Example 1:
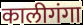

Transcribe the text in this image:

कालीगंगा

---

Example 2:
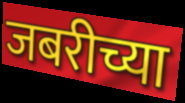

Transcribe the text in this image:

जबरीच्या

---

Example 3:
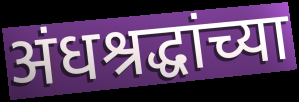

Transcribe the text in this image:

अंधश्रद्धांच्या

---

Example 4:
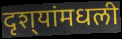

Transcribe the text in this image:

दृश्यांमधली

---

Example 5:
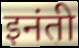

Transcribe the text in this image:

इनंती